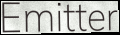
Emitter